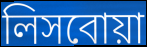
লিসবোয়া